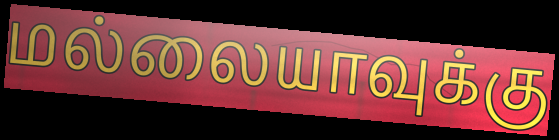
மல்லையாவுக்கு